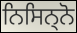
ਨਿਸਿਨ੍ਨੋ